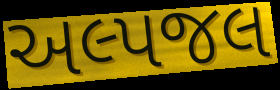
અલ્પજલ